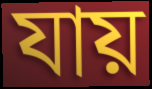
যায়